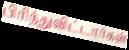
பிரிந்துவிட்டார்கள்